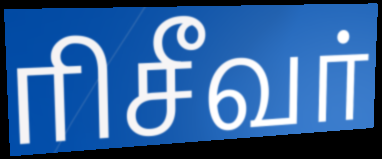
ரிசீவர்